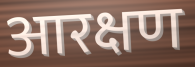
आरक्षण